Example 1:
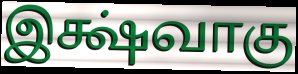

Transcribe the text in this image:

இக்ஷ்வாகு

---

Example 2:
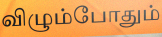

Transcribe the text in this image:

விழும்போதும்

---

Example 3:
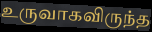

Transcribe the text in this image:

உருவாகவிருந்த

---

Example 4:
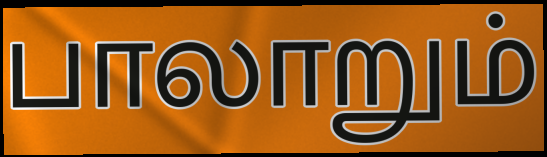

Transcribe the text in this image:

பாலாறும்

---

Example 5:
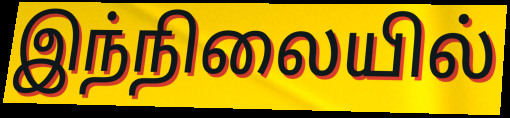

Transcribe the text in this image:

இந்நிலையில்